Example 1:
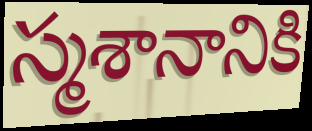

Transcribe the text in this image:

స్మశానానికి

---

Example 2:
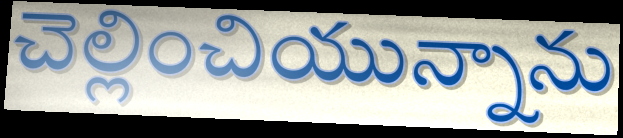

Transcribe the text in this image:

చెల్లించియున్నాను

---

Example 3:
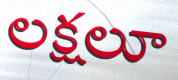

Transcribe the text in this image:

లక్షలూ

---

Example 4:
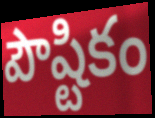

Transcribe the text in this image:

పౌష్టికం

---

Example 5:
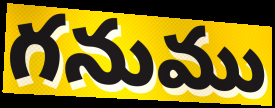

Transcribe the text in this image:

గనుము